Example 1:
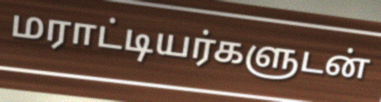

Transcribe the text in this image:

மராட்டியர்களுடன்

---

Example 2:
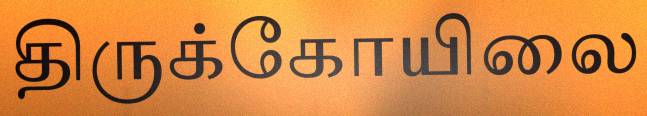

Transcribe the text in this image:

திருக்கோயிலை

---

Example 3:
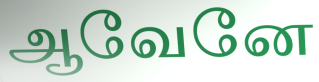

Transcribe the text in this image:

ஆவேனே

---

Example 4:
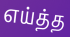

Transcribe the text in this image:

எய்த்த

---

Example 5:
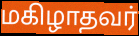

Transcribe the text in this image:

மகிழாதவர்